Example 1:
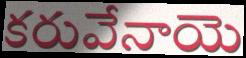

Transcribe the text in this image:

కరువేనాయె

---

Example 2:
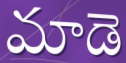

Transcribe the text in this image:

మాడె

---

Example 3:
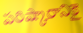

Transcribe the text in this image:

పరిష్కారానికై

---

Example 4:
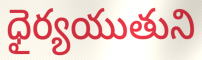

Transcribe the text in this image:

ధైర్యయుతుని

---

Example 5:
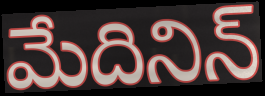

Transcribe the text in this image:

మేదినిన్